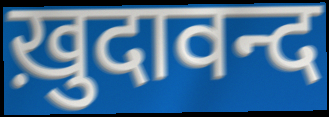
ख़ुदावन्द